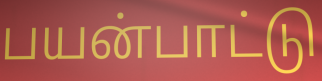
பயன்பாட்டு